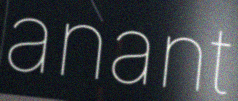
anant